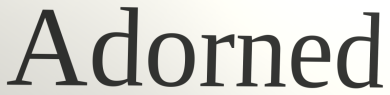
Adorned